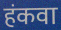
हंकवा